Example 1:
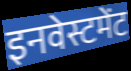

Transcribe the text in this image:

इनवेस्टमेंट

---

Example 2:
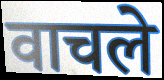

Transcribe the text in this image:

वाचले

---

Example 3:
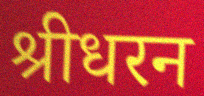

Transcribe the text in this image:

श्रीधरन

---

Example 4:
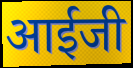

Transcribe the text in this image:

आईजी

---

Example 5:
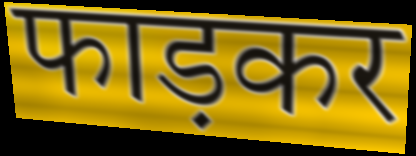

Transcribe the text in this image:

फाड़कर